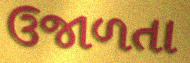
ઉજાળતા